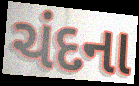
ચંદના